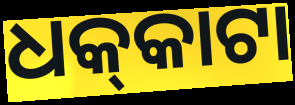
ଧକ୍‌କାଟା